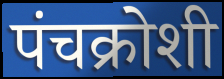
पंचक्रोशी